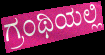
ಗ್ರಂಥಿಯಲ್ಲಿ